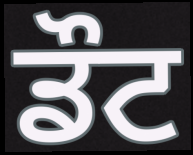
ਡੌਟ